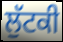
ਲੁੱਟਕੀ